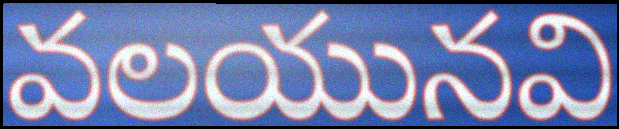
వలయునవి